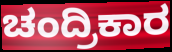
ಚಂದ್ರಿಕಾರ